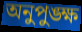
অনুপুঙ্ক্ষ